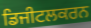
ਡਿਜੀਟਲਕਰਨ